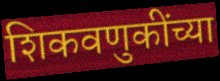
शिकवणुकींच्या